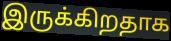
இருக்கிறதாக